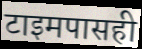
टाइमपासही